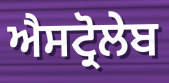
ਐਸਟ੍ਰੋਲੇਬ